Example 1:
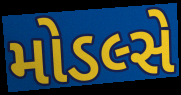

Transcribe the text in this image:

મોડલ્સે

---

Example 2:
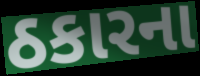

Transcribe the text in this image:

ઠકારના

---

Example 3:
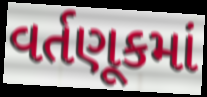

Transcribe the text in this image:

વર્તણૂકમાં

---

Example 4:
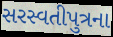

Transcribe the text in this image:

સરસ્વતીપુત્રના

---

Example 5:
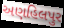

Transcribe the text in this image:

અણહિલપુર